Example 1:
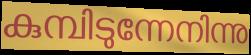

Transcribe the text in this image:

കുമ്പിടുന്നേനിന്നു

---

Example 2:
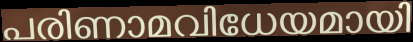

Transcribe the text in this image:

പരിണാമവിധേയമായി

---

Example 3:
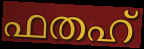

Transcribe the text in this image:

ഫതഹ്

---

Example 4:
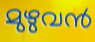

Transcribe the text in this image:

മുഴുവൻ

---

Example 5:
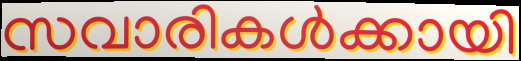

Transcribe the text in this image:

സവാരികൾക്കായി